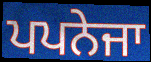
ਪਪਨੇਜਾ